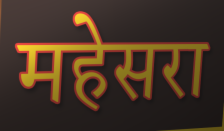
महेसरा